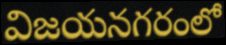
విజయనగరంలో